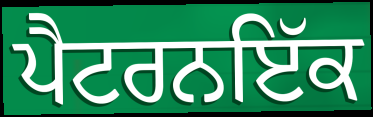
ਪੈਟਰਨਇੱਕ